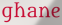
ghane